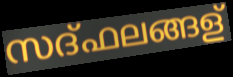
സദ്ഫലങ്ങള്